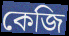
কেজি